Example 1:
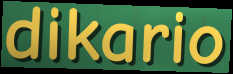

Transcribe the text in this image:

dikario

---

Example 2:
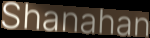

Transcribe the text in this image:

Shanahan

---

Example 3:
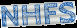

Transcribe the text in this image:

NHFS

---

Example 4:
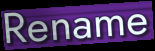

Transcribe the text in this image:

Rename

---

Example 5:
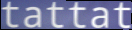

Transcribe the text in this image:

tattat